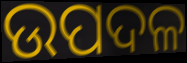
ଉପଦଳ